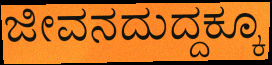
ಜೀವನದುದ್ದಕ್ಕೂ